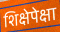
शिक्षेपेक्षा